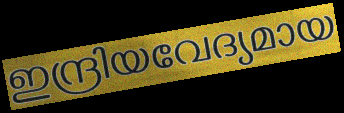
ഇന്ദ്രിയവേദ്യമായ